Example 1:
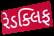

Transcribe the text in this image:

રેડક્લિફ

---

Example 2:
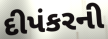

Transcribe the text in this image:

દીપંકરની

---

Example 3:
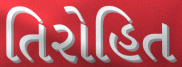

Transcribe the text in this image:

તિરોહિત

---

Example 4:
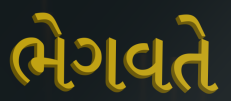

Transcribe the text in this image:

ભેગવતે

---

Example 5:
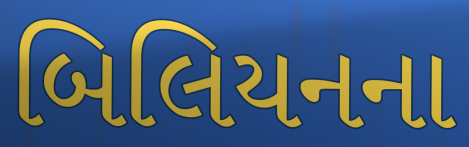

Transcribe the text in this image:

બિલિયનના